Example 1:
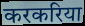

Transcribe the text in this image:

करकरिया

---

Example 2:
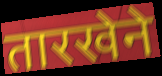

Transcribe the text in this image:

तारखेने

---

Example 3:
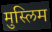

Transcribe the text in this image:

मुस्लिम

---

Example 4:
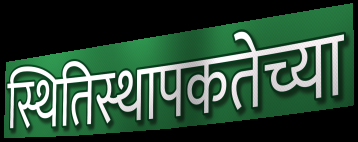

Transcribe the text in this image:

स्थितिस्थापकतेच्या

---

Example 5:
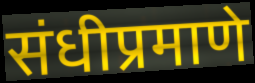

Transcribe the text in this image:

संधीप्रमाणे